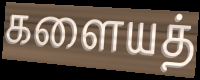
களையத்